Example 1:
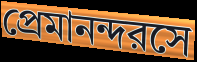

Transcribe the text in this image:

প্রেমানন্দরসে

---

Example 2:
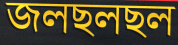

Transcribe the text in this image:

জলছলছল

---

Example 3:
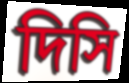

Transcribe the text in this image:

দিসি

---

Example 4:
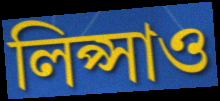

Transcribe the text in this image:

লিপ্সাও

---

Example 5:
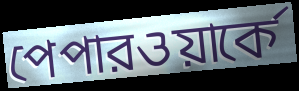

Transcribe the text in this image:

পেপারওয়ার্কে